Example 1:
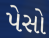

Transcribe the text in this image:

પેસો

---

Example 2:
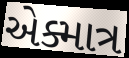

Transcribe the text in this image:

એક્માત્ર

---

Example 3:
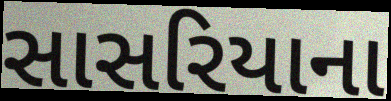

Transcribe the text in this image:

સાસરિયાના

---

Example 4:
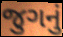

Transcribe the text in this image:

જુગનું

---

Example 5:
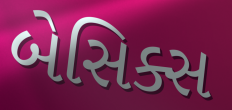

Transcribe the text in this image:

બેસિક્સ